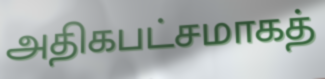
அதிகபட்சமாகத்